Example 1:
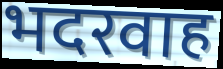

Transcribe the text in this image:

भदरवाह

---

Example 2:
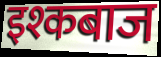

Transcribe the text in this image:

इश्कबाज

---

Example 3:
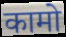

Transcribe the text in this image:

कामो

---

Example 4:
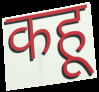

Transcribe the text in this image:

कहू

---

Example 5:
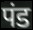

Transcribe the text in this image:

पंड